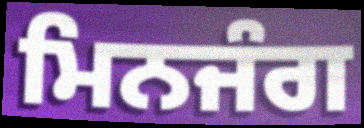
ਮਿਨਜੰਗ